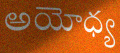
అయోధ్య